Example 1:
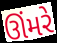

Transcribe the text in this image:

ઊંમરે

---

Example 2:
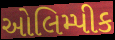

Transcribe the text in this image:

ઓલિમ્પીક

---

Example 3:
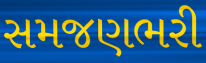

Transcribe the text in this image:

સમજણભરી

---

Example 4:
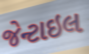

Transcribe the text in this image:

જેન્ટાઇલ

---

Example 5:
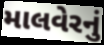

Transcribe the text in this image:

માલવેરનું